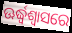
ଊର୍ଦ୍ଧ୍ୱଶ୍ୱାସରେ